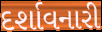
દર્શાવનારી